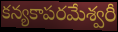
కన్యకాపరమేశ్వరీ